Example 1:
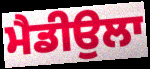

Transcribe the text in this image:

ਮੈਡੀਉਲਾ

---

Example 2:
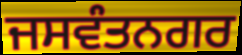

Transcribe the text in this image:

ਜਸਵੰਤਨਗਰ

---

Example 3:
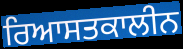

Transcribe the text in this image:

ਰਿਆਸਤਕਾਲੀਨ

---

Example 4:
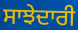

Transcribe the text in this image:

ਸਾਝੇਦਾਰੀ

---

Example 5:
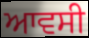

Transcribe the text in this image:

ਆਵਸੀ